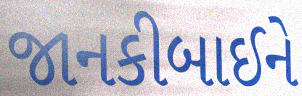
જાનકીબાઈને